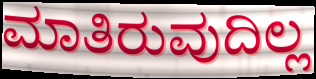
ಮಾತಿರುವುದಿಲ್ಲ